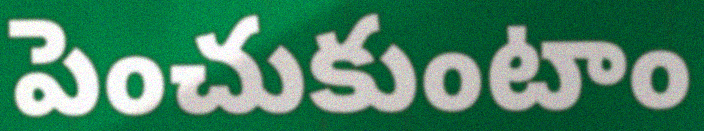
పెంచుకుంటాం